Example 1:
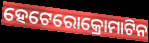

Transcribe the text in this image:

ହେଟେରୋକ୍ରୋମାଟିନ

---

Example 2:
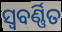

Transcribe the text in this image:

ସ୍ୱବର୍ଣ୍ଣିତ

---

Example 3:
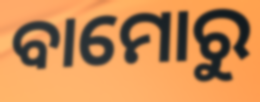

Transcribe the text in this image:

ବାମୋରୁ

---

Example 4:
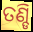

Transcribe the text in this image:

ତଣ୍ଡି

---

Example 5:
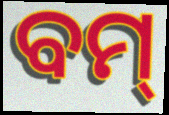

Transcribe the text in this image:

ବମ୍